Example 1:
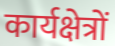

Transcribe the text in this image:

कार्यक्षेत्रों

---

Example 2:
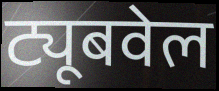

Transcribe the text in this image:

ट्यूबवेल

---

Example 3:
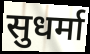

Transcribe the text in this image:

सुधर्मा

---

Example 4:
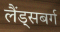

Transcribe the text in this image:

लैंड्सबर्ग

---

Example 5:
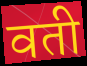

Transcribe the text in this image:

वती